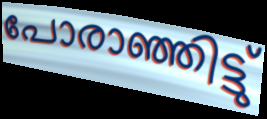
പോരാഞ്ഞിട്ടു്